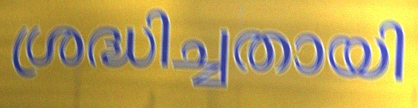
ശ്രദ്ധിച്ചതായി